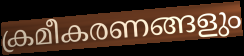
ക്രമീകരണങ്ങളും